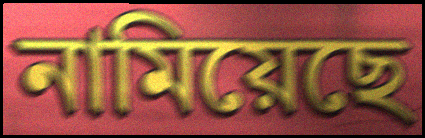
নামিয়েছে